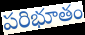
పరిభూతం